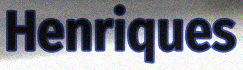
Henriques